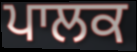
ਪਾਲਕ